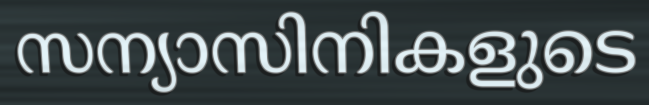
സന്യാസിനികളുടെ